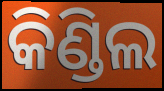
କିଣ୍ଡିଲ